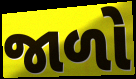
જાળો